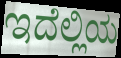
ಇದೆಲ್ಲಿಯ